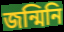
জন্মিনি